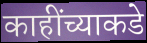
काहींच्याकडे